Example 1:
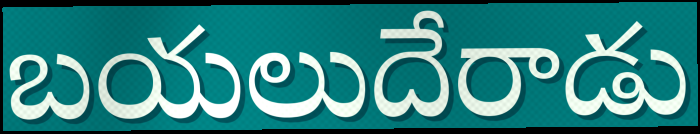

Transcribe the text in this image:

బయలుదేరాడు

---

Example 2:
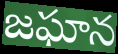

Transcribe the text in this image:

జఘాన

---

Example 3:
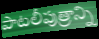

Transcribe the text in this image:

పాటలీపుత్రాన్ని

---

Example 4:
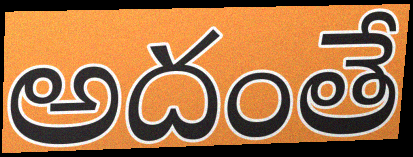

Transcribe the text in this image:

అదంతే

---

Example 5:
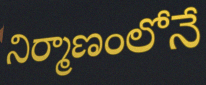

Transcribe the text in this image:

నిర్మాణంలోనే